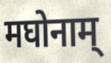
मघोनाम्